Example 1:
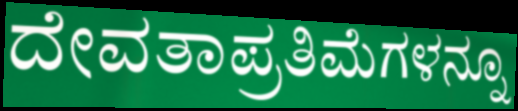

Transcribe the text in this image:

ದೇವತಾಪ್ರತಿಮೆಗಳನ್ನೂ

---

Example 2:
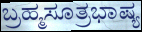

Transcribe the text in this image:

ಬ್ರಹ್ಮಸೂತ್ರಭಾಷ್ಯ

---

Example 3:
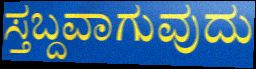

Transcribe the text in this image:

ಸ್ತಬ್ದವಾಗುವುದು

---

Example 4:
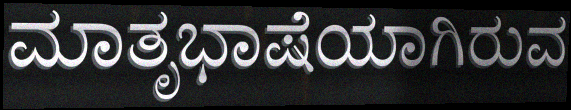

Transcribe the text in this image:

ಮಾತೃಭಾಷೆಯಾಗಿರುವ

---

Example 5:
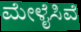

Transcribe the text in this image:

ಮೇಳೈಸಿವೆ